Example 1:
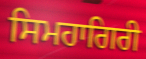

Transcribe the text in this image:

ਸਿਮਹਾਗਿਰੀ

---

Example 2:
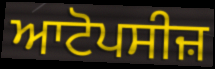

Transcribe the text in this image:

ਆਟੋਪਸੀਜ਼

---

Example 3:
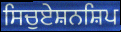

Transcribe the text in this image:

ਸਿਚੁਏਸ਼ਨਸ਼ਿਪ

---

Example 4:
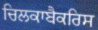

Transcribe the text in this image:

ਚਿਲਕਾਬੈਕਰਿਸ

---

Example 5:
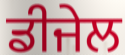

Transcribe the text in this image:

ਡੀਜੇਲ